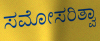
ಸಮೋಸರಿತ್ವಾ